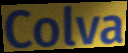
Colva